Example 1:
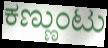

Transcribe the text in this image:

ಕಣ್ಣುಂಟು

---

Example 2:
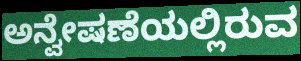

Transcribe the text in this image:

ಅನ್ವೇಷಣೆಯಲ್ಲಿರುವ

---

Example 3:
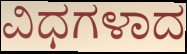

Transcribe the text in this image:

ವಿಧಗಳಾದ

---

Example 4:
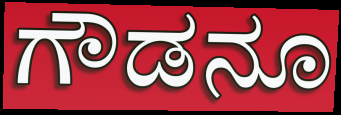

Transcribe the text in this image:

ಗೌಡನೂ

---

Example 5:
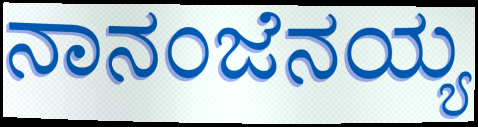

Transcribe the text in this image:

ನಾನಂಜೆನಯ್ಯ